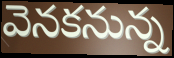
వెనకనున్న